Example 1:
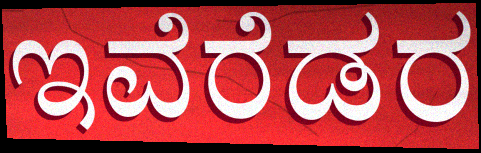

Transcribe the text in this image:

ಇವೆರೆಡರ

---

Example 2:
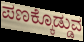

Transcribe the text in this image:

ಪಣಕ್ಕೊಡ್ಡುವ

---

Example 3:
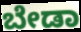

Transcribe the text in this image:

ಬೇಡಾ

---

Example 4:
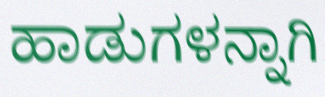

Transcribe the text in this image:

ಹಾಡುಗಳನ್ನಾಗಿ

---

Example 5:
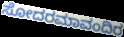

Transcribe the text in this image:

ಸೋದರಮಾವಂದಿರ